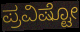
ಪ್ರವಿಷ್ಟೋ